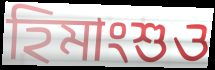
হিমাংশুও